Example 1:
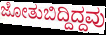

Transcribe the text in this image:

ಜೋತುಬಿದ್ದಿದ್ದವು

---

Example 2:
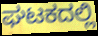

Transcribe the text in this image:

ಘಟಕದಲ್ಲಿ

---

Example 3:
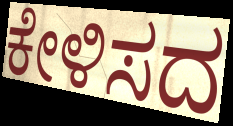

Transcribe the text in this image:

ಕೇಳಿಸದ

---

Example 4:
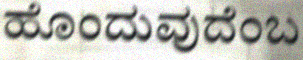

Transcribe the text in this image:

ಹೊಂದುವುದೆಂಬ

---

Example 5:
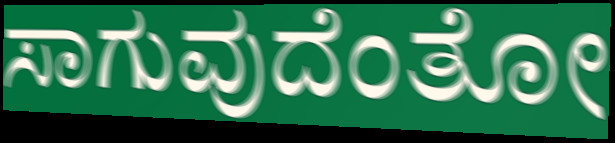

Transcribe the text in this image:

ಸಾಗುವುದೆಂತೋ